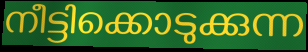
നീട്ടിക്കൊടുക്കുന്ന